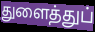
துளைத்துப்